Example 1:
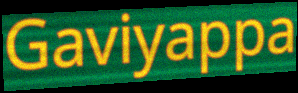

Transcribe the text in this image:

Gaviyappa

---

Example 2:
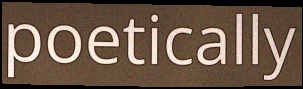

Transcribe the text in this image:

poetically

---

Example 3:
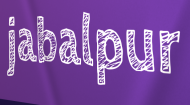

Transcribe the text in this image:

jabalpur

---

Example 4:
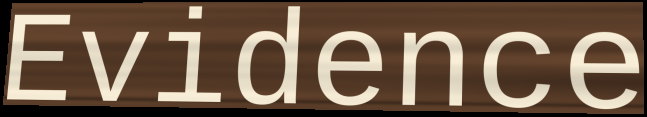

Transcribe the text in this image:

Evidence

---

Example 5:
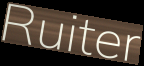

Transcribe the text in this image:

Ruiter